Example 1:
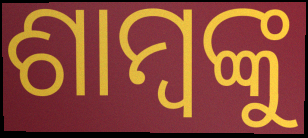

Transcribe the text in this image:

ଶାମ୍ବଙ୍କୁ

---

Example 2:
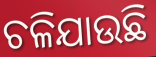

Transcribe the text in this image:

ଚଳିଯାଉଛି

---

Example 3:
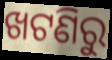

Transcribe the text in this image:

ଖଟଣିରୁ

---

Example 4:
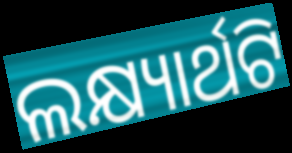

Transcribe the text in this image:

ଲକ୍ଷ୍ୟାର୍ଥଟି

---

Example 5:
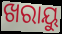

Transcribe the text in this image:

ଖରାୟୁ